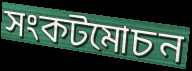
সংকটমোচন